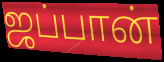
ஜப்பான்